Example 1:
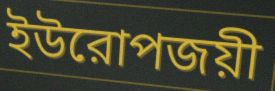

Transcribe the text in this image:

ইউরোপজয়ী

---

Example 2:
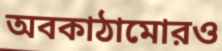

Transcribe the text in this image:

অবকাঠামোরও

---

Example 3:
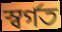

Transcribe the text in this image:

স্বর্গত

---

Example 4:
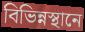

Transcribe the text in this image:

বিভিন্নস্থানে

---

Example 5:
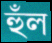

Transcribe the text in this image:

হুঁল